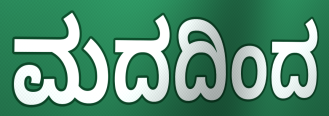
ಮದದಿಂದ